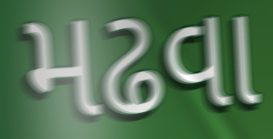
મઢવા